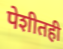
पेशीतही